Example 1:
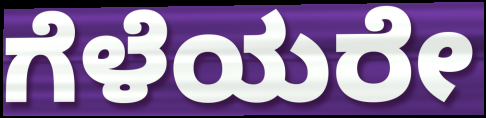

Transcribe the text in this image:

ಗೆಳೆಯರೇ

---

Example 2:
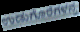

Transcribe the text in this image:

ಉಡುಗೊರೆಗಳನ್ನ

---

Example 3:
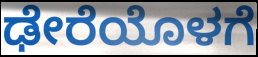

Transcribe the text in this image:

ಢೇರೆಯೊಳಗೆ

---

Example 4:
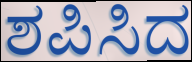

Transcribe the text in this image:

ಶಪಿಸಿದ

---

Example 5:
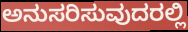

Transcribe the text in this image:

ಅನುಸರಿಸುವುದರಲ್ಲಿ